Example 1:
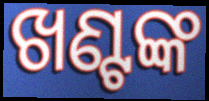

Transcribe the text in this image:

ଖଣ୍ଟଙ୍କ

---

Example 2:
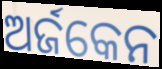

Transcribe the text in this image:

ଅର୍ଜକେନ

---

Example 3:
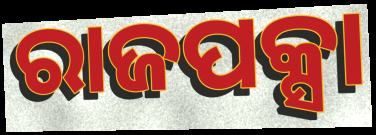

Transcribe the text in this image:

ରାଜପକ୍ସା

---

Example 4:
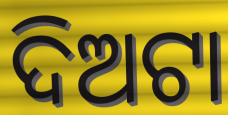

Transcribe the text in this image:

ଦିଅଟା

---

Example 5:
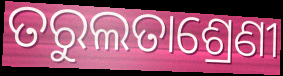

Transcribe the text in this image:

ତରୁଲତାଶ୍ରେଣୀ